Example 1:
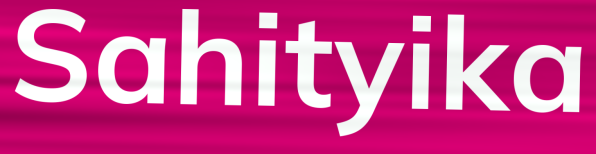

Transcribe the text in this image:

Sahityika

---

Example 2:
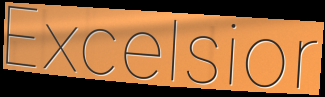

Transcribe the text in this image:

Excelsior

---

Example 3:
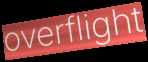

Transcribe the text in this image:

overflight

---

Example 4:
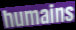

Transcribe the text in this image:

humains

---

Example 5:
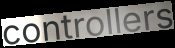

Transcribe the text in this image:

controllers